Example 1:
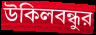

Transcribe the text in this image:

উকিলবন্ধুর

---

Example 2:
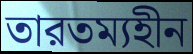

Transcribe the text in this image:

তারতম্যহীন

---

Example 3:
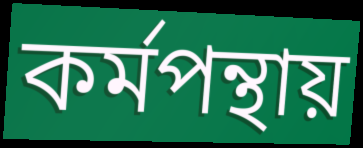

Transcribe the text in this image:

কর্মপন্থায়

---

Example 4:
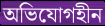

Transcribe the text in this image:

অভিযোগহীন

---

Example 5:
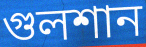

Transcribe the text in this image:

গুলশান